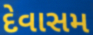
દેવાસમ